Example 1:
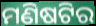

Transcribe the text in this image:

ମଣିଷଟିର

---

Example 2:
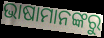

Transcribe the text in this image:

ଭାଷାମାନଙ୍କରୁ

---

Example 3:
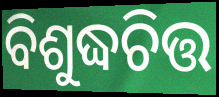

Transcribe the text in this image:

ବିଶୁଦ୍ଧଚିତ୍ତ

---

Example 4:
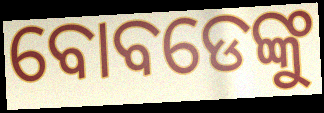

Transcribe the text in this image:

ବୋବଡେଙ୍କୁ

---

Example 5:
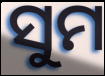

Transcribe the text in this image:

ସୁମ